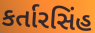
કર્તારસિંહ